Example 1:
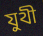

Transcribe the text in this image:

যুথী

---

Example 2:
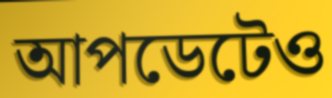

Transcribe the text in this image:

আপডেটেও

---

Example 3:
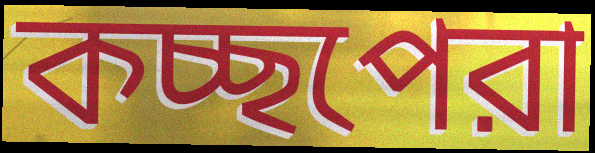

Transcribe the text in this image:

কচ্ছপেরা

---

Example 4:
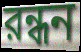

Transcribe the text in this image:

রন্ধন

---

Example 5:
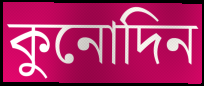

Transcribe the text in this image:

কুনোদিন